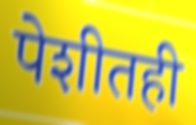
पेशीतही